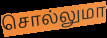
சொல்லுமா